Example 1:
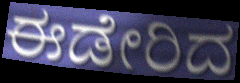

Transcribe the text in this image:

ಈಡೇರಿದ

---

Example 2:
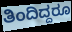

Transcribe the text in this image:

ತಿಂದಿದ್ದರೂ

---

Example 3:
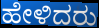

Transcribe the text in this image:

ಹೇಳಿದರು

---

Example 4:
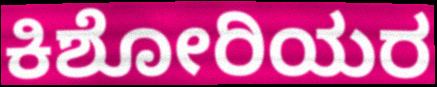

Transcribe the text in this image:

ಕಿಶೋರಿಯರ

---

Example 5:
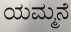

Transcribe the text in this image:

ಯಮ್ಮನೆ